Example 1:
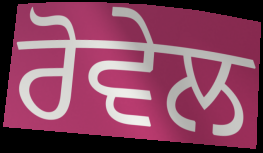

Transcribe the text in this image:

ਰੋਵੇਲ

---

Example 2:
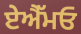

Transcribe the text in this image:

ਏਐੱਮਓ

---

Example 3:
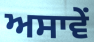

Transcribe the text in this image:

ਅਸਾਵੇਂ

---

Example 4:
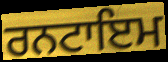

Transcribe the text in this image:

ਰਨਟਾਇਮ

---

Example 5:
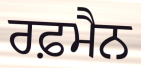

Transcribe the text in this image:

ਰਫ਼ਮੈਨ